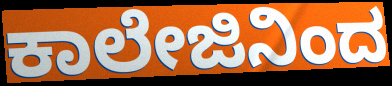
ಕಾಲೇಜಿನಿಂದ